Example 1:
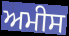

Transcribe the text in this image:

ਅਮੀਸ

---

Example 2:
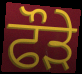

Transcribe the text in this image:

ਫੌੜੇ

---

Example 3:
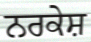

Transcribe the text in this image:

ਨਰਕੇਸ਼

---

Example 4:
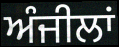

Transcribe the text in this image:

ਅੰਜੀਲਾਂ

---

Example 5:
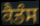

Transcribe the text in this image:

ਕੈਡੰਸ